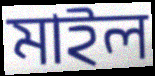
মাইল